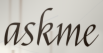
askme